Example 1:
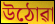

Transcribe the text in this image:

উঠোৱা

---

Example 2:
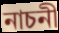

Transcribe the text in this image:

নাচনী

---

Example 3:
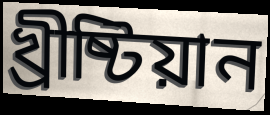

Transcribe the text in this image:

খ্ৰীষ্টিয়ান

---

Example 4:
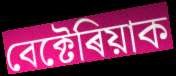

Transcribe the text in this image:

বেক্টেৰিয়াক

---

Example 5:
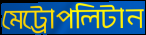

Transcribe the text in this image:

মেট্ৰোপলিটান